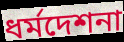
ধর্মদেশনা